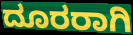
ದೂರರಾಗಿ